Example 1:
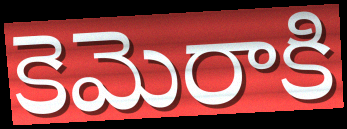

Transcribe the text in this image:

కెమెరాకి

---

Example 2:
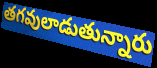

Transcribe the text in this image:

తగవులాడుతున్నారు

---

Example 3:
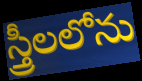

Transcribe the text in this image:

స్త్రీలలోను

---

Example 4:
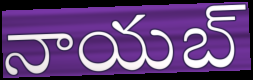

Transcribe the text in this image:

నాయబ్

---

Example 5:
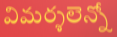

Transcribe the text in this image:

విమర్శలెన్నో